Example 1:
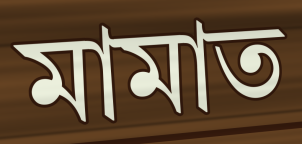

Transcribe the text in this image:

মামাত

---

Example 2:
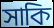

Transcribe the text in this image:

সাকি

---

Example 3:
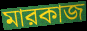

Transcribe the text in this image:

মারকাজ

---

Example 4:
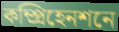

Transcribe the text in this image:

কম্প্রিহেনশনে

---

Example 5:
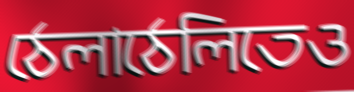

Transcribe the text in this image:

ঠেলাঠেলিতেও